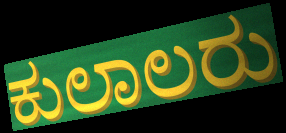
ಕುಲಾಲರು